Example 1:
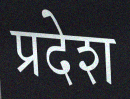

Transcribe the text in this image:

प्रदेश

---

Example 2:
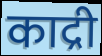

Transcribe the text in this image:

काद्री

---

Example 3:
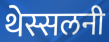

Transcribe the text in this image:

थेस्सलनी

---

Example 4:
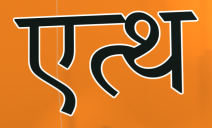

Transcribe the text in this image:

एत्थ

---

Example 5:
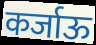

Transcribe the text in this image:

कर्जाऊ